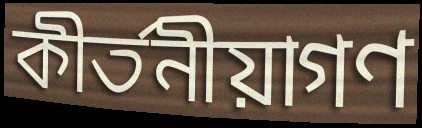
কীর্তনীয়াগণ